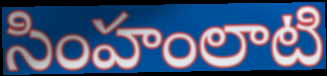
సింహంలాటి